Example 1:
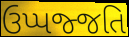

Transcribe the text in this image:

ઉપ્પજ્જતિ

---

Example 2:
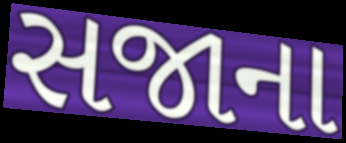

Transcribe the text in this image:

સજાના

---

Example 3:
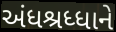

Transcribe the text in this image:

અંધશ્રધ્ધાને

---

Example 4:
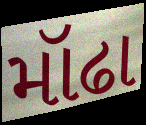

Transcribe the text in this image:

મૉઢા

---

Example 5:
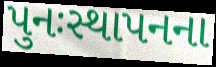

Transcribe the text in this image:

પુનઃસ્થાપનના